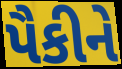
પૈકીને